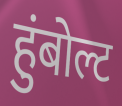
हुंबोल्ट